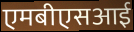
एमबीएसआई